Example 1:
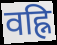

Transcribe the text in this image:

वह्नि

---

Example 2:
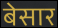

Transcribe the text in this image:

बेसार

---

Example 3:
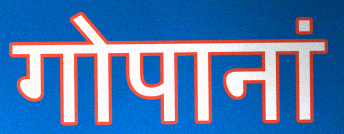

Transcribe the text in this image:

गोपानां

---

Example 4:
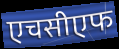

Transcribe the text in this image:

एचसीएफ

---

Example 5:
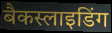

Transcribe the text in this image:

बैकस्लाइडिंग